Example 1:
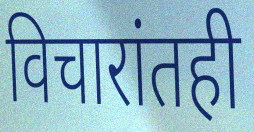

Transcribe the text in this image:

विचारांतही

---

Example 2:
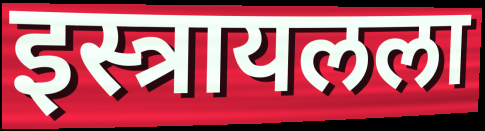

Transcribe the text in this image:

इस्त्रायलला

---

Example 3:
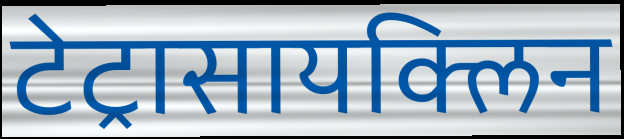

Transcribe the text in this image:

टेट्रासायक्लिन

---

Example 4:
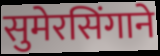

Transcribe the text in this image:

सुमेरसिंगाने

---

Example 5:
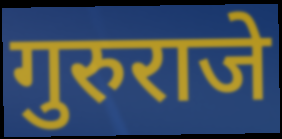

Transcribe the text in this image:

गुरुराजे